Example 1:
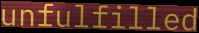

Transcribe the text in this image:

unfulfilled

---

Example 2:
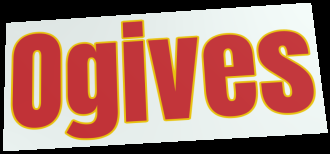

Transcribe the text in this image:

Ogives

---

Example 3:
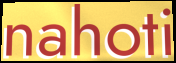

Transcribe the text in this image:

nahoti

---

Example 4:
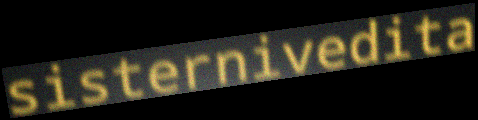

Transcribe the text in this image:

sisternivedita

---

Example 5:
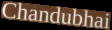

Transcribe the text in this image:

Chandubhai